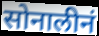
सोनालीनं